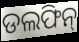
ଡଲଫିନ୍